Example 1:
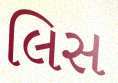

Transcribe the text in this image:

લિસ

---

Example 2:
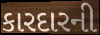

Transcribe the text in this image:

કારદારની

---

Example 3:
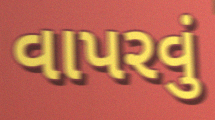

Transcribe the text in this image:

વાપરવું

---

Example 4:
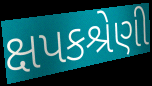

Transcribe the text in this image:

ક્ષપકશ્રેણી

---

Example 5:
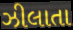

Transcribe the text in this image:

ઝીલાતા